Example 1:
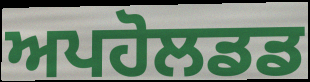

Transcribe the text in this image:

ਅਪਹੋਲਡਡ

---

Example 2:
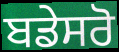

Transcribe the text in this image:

ਬਡੇਸਰੋ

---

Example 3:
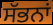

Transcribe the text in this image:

ਸੱਭਨਾਂ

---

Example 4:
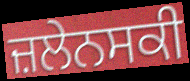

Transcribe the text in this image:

ਜ਼ਲੇਨਸਕੀ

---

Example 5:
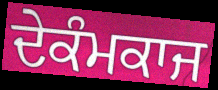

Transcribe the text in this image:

ਦੇਕੰਮਕਾਜ